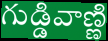
గుడ్డివాణ్ణి